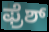
ಫ್ರೆಶ್